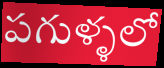
పగుళ్ళలో